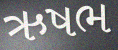
ઋષભ